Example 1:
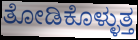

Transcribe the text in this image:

ತೋಡಿಕೊಳ್ಳುತ್ತ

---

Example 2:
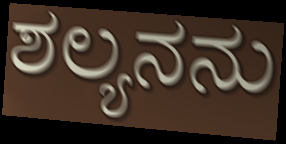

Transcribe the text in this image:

ಶಲ್ಯನನು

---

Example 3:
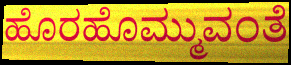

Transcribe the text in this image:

ಹೊರಹೊಮ್ಮುವಂತೆ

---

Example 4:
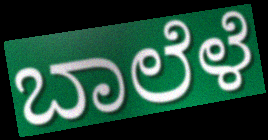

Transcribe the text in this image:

ಬಾಲೆಳೆ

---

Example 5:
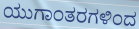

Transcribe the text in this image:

ಯುಗಾಂತರಗಳಿಂದ